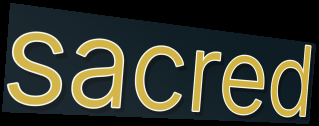
sacred